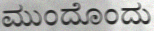
ಮುಂದೊಂದು